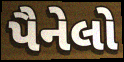
પૈનેલો